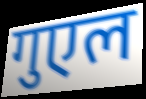
गुएल